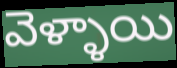
వెళ్ళాయి